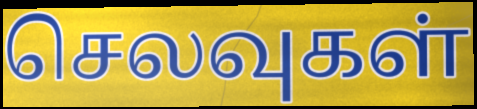
செலவுகள்